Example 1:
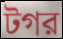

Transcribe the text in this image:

টগর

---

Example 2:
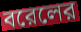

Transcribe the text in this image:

বরেলের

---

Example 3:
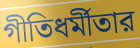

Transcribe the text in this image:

গীতিধর্মীতার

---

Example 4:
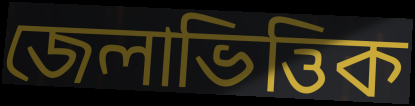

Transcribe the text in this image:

জেলাভিত্তিক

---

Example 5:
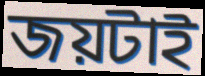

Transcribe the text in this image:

জয়টাই